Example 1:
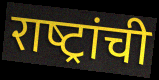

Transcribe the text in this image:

राष्ट्रांची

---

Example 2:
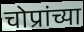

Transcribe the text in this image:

चोप्रांच्या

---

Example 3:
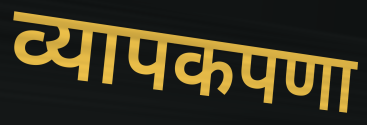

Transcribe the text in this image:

व्यापकपणा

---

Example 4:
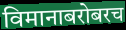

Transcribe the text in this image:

विमानाबरोबरच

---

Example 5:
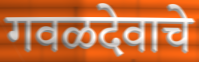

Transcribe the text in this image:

गवळदेवाचे